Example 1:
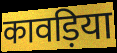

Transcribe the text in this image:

कावड़िया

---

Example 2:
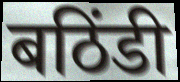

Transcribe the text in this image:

बठिंडी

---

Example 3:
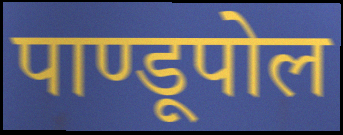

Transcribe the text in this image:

पाण्डूपोल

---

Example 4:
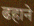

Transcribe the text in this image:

ढहाने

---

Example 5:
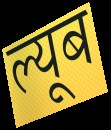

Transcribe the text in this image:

ल्यूब